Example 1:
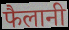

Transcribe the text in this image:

फैलानी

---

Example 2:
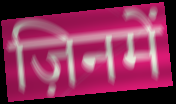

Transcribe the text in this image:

ज़िनमें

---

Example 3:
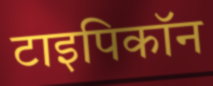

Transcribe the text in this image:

टाइपिकॉन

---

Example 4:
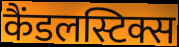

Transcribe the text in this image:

कैंडलस्टिक्स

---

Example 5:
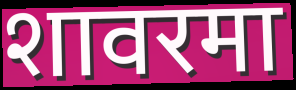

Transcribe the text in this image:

शावरमा